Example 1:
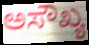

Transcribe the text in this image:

ಅಸೌಖ್ಯ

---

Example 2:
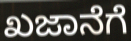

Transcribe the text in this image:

ಖಜಾನೆಗೆ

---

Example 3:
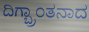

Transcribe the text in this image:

ದಿಗ್ಬ್ರಾಂತನಾದ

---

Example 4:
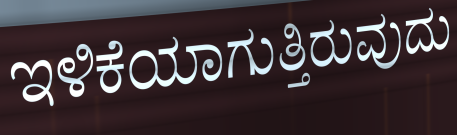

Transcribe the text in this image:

ಇಳಿಕೆಯಾಗುತ್ತಿರುವುದು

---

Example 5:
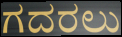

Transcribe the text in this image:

ಗದರಲು